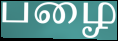
பழை